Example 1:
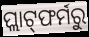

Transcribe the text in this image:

ପ୍ଲାଟ୍‌ଫର୍ମରୁ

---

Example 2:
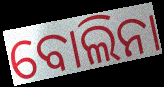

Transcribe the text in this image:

ବୋଲିନା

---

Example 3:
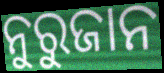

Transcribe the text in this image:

ନୁରୁଜାନ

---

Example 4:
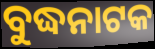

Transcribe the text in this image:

ବୁଦ୍ଧନାଟକ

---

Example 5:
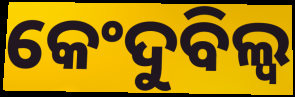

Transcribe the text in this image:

କେଂଦୁବିଲ୍ୱ